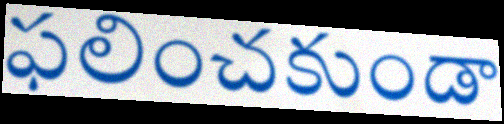
ఫలించకుండా